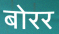
बोरर